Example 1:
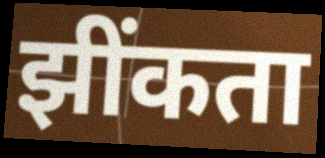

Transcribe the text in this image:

झींकता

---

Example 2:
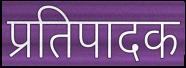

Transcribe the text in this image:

प्रतिपादक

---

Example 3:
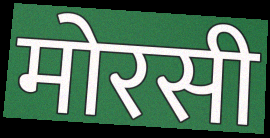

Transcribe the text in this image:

मोरसी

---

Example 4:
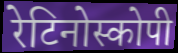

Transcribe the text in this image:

रेटिनोस्कोपी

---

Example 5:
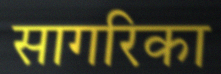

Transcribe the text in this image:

सागरिका